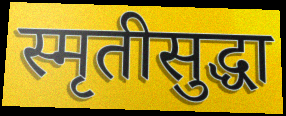
स्मृतीसुद्धा